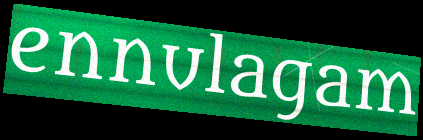
ennulagam